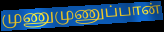
முணுமுணுப்பான்